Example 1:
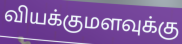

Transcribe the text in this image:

வியக்குமளவுக்கு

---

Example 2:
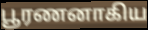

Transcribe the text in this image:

பூரணனாகிய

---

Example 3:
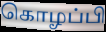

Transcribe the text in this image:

கொழப்பி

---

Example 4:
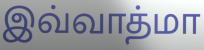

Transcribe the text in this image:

இவ்வாத்மா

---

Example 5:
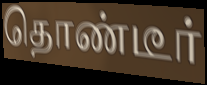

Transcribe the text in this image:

தொண்டீர்